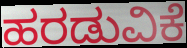
ಹರಡುವಿಕೆ